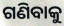
ଗଣିବାକୁ